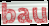
bau